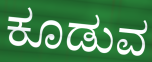
ಕೂಡುವ